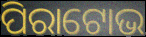
ପିରାଟୋଭ